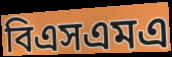
বিএসএমএ